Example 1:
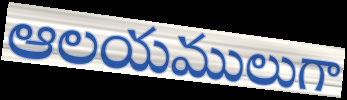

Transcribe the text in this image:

ఆలయములుగా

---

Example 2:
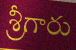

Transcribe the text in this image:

శ్రీగారు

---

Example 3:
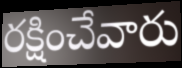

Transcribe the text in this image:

రక్షించేవారు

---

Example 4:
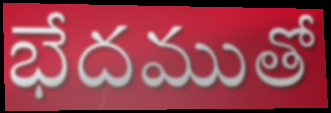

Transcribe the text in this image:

భేదముతో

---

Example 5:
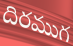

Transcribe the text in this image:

దిరముగ